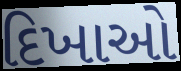
દિખાઓ